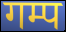
गम्प